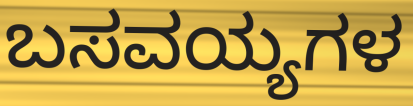
ಬಸವಯ್ಯಗಳ